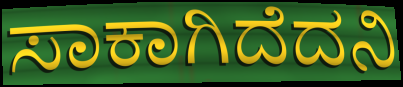
ಸಾಕಾಗಿದೆದನಿ